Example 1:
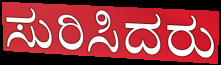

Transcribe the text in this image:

ಸುರಿಸಿದರು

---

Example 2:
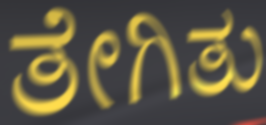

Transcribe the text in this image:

ತೇಗಿತು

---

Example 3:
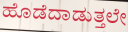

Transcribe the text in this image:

ಹೊಡೆದಾಡುತ್ತಲೇ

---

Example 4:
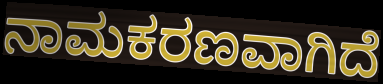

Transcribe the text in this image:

ನಾಮಕರಣವಾಗಿದೆ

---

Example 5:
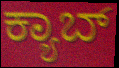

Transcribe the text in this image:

ಕ್ಯಾಬ್